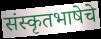
संस्कृतभाषेचे